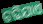
ଚଢିଯାଏ